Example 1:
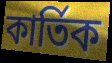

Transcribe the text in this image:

কার্তিক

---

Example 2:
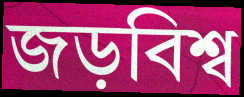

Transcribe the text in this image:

জড়বিশ্ব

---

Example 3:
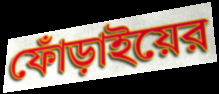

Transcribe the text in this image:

ফোঁড়াইয়ের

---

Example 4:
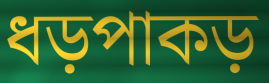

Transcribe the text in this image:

ধড়পাকড়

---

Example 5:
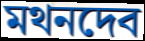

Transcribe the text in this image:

মথনদেব